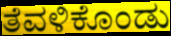
ತೆವಳಿಕೊಂಡು